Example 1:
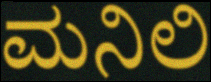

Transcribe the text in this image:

ಮನಿಲಿ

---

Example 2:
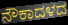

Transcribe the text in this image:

ನೌಕಾದಳದ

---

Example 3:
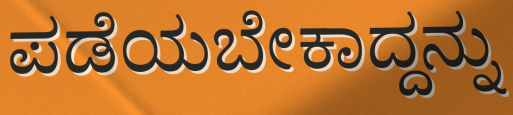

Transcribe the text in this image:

ಪಡೆಯಬೇಕಾದ್ದನ್ನು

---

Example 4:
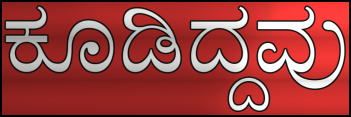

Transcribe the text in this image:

ಕೂಡಿದ್ದವು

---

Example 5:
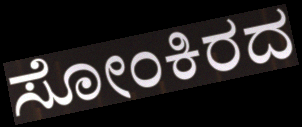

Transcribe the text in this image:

ಸೋಂಕಿರದ